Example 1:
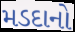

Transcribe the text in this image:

મડદાનો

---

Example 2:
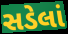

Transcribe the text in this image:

સડેલાં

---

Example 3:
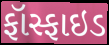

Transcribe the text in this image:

ફૉસ્ફાઇડ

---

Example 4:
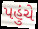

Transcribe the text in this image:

પહુંચે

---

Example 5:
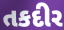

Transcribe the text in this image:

તકદીર